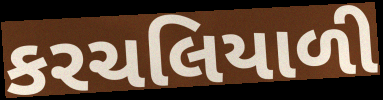
કરચલિયાળી